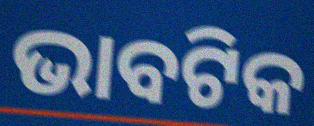
ଭାବଟିକ